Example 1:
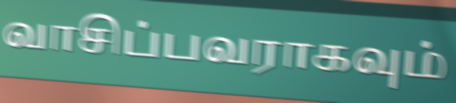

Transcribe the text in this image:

வாசிப்பவராகவும்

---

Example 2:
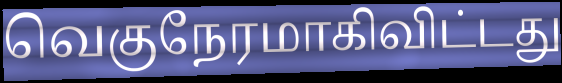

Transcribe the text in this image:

வெகுநேரமாகிவிட்டது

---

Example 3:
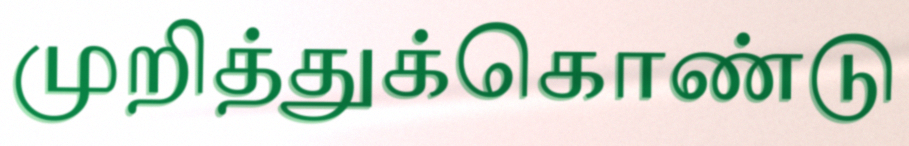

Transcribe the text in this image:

முறித்துக்கொண்டு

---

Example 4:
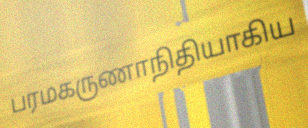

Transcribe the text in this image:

பரமகருணாநிதியாகிய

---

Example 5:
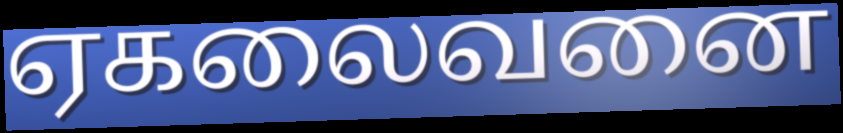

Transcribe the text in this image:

ஏகலைவனை